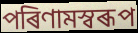
পৰিণামস্বৰূপ